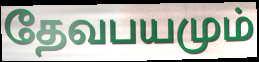
தேவபயமும்